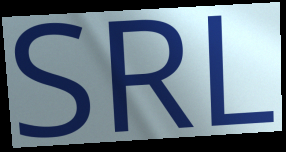
SRL